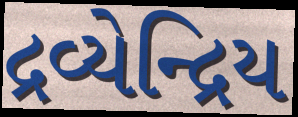
દ્રવ્યેન્દ્રિય